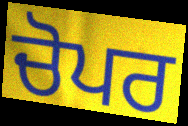
ਚੋਪਰ